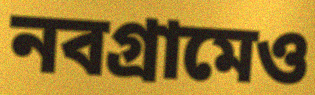
নবগ্রামেও